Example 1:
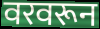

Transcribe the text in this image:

वरवरून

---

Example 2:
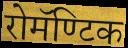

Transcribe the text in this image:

रोमॅण्टिक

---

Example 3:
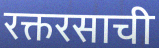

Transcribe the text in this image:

रक्तरसाची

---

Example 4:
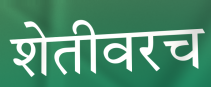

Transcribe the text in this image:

शेतीवरच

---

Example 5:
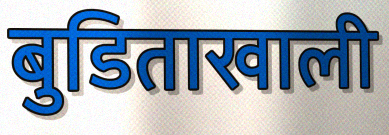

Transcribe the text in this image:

बुडिताखाली